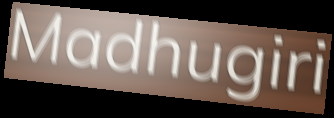
Madhugiri